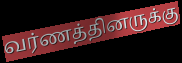
வர்ணத்தினருக்கு